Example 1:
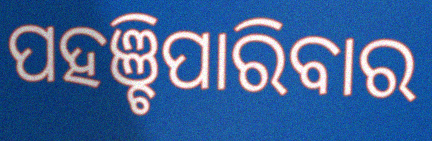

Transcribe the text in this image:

ପହଞ୍ଚିପାରିବାର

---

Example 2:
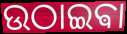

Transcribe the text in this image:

ଉଠାଇଵା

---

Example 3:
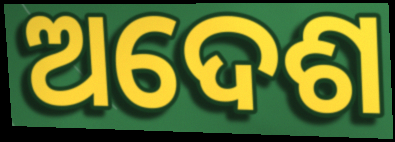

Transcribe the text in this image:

ଅଦେଶ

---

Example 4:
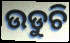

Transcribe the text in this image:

ଉଡୁଚି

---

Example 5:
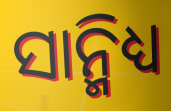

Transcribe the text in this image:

ସାନ୍ମିଧ୍ୟ